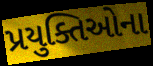
પ્રયુક્તિઓના